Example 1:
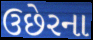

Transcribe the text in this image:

ઉછેરના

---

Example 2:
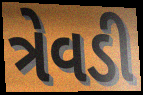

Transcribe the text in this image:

ત્રેવડી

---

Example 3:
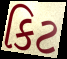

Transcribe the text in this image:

કિટ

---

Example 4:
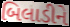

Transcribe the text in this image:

બિલાડીને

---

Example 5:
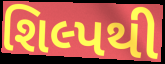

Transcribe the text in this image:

શિલ્પથી